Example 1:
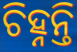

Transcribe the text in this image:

ଚିହ୍ନନ୍ତି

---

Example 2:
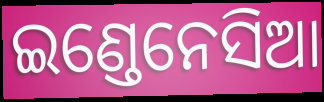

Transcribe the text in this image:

ଇଣ୍ଡେନେସିଆ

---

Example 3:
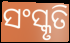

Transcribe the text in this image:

ସଂସ୍କୃତି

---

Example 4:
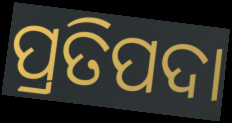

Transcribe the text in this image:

ପ୍ରତିପଦା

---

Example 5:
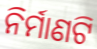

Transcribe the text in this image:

ନିର୍ମାଣଟି